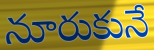
నూరుకునే